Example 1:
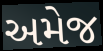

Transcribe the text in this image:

અમેજ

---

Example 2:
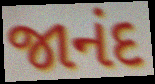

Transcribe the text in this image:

જાનંદ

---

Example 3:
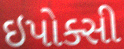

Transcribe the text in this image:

ઇપોક્સી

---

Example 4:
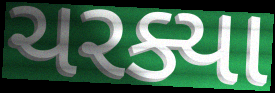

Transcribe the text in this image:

ચરક્યા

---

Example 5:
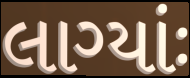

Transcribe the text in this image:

લાગ્યાંઃ